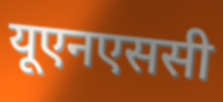
यूएनएससी